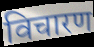
विचारण